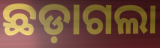
ଛଡ଼ାଗଲା